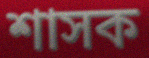
শাসক